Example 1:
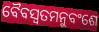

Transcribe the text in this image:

ବୈବସ୍ଵତମନୁବଂଶେ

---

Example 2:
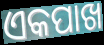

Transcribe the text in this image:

ଏକପାଖ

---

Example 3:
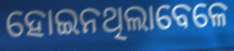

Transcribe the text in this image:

ହୋଇନଥିଲାବେଳେ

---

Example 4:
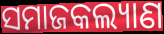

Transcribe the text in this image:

ସମାଜକଲ୍ୟାଣ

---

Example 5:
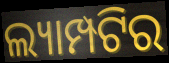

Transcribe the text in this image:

ଲ୍ୟାମ୍ପଟିର